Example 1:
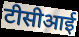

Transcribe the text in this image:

टीसीआई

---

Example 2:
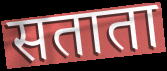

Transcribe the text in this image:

सताता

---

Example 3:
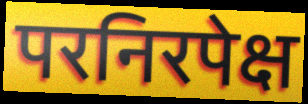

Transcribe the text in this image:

परनिरपेक्ष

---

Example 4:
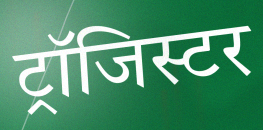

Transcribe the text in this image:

ट्रॉजिस्टर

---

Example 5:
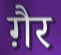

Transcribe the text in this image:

ग़ैर